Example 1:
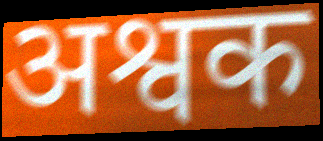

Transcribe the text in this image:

अश्वक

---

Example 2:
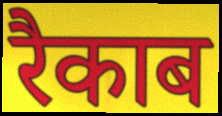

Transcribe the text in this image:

रैकाब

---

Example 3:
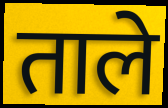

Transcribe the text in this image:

ताले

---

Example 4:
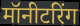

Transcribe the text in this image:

मॉनीटरिंग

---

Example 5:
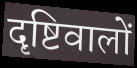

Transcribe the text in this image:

दृष्टिवालों